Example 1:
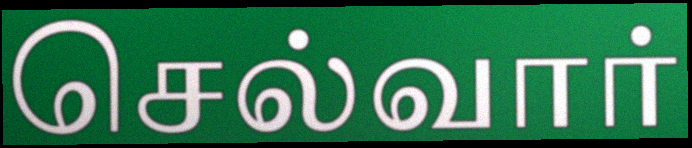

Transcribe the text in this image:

செல்வார்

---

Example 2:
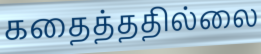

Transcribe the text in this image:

கதைத்ததில்லை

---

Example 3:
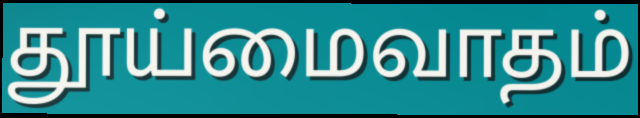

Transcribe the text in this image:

தூய்மைவாதம்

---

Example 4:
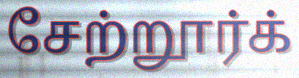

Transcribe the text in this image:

சேற்றூர்க்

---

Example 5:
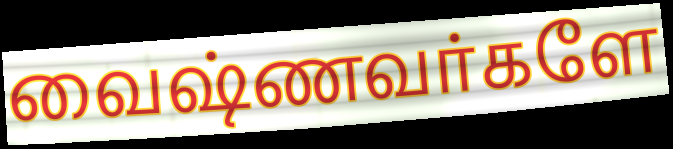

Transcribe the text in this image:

வைஷ்ணவர்களே